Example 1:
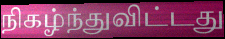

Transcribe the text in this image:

நிகழ்ந்துவிட்டது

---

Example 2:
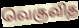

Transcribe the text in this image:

வெகுவித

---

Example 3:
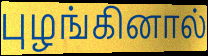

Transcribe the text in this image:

புழங்கினால்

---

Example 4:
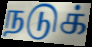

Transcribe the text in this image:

நடுக்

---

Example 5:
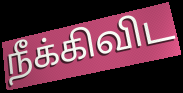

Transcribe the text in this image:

நீக்கிவிட